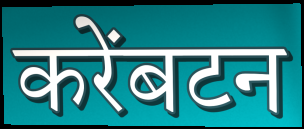
करेंबटन